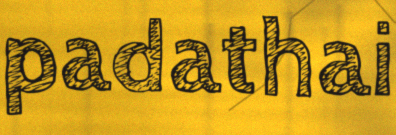
padathai